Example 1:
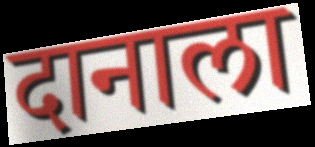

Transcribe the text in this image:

दानाला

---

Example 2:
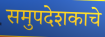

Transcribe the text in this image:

समुपदेशकाचे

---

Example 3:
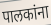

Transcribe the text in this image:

पालकांना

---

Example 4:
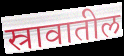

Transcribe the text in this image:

स्रावातील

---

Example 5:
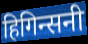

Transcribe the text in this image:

हिगिन्सनी